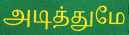
அடித்துமே